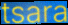
tsara